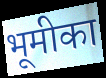
भूमीका